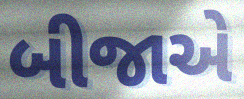
બીજાએ